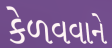
કેળવવાને